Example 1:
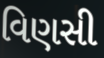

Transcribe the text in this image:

વિણસી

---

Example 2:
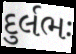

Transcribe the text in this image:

દુર્લભઃ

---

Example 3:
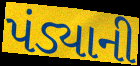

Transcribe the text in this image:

પંડ્યાની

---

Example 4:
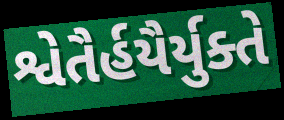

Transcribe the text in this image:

શ્વેતૈર્હયૈર્યુક્તે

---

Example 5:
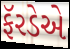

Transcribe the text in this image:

ફૅરડેએ